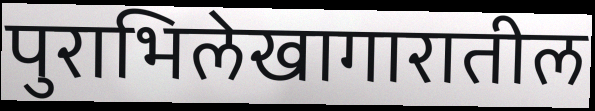
पुराभिलेखागारातील